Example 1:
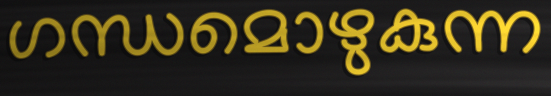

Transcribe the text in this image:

ഗന്ധമൊഴുകുന്ന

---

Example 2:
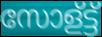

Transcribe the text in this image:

സോള്ട്ട്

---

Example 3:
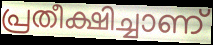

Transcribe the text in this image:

പ്രതീക്ഷിച്ചാണ്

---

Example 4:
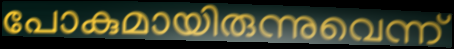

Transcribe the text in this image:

പോകുമായിരുന്നുവെന്ന്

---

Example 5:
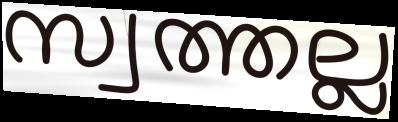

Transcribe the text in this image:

സ്വത്തല്ല